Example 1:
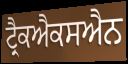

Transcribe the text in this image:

ਟ੍ਰੈਕਐਕਸਐਨ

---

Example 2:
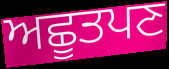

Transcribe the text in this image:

ਅਛੂਤਪਣ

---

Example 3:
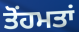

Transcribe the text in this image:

ਤੋਂਹਮਤਾਂ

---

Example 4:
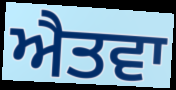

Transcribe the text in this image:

ਐਤਵਾ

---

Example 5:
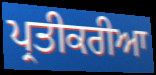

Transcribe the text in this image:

ਪ੍ਰਤੀਕਰੀਆ